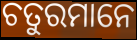
ଚତୁରମାନେ